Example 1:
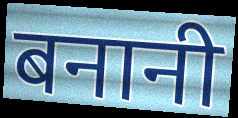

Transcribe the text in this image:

बनानी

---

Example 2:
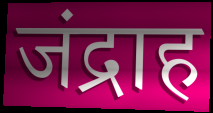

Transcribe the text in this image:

जंद्राह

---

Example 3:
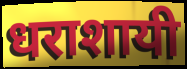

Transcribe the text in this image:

धराशायी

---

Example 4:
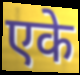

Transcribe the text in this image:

एके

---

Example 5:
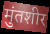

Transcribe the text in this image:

मुंतशीर